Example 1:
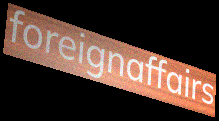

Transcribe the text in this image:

foreignaffairs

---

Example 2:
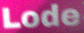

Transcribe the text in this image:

Lode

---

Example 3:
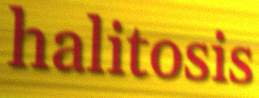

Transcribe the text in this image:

halitosis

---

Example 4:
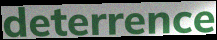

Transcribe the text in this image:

deterrence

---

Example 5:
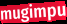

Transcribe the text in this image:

mugimpu